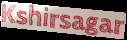
Kshirsagar